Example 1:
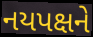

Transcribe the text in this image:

નયપક્ષને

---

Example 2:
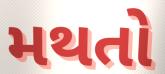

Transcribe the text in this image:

મથતો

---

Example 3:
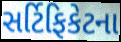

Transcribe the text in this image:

સર્ટિફિકેટના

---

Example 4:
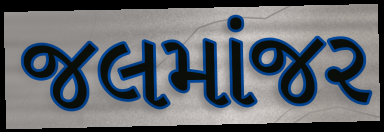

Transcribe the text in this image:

જલમાંજર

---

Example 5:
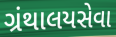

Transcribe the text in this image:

ગ્રંથાલયસેવા